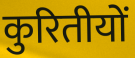
कुरितीयों